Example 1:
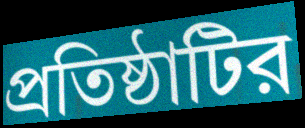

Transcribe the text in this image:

প্রতিষ্ঠাটির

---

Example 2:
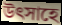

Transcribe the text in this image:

উৎসাহে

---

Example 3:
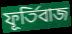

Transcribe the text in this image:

ফূর্তিবাজ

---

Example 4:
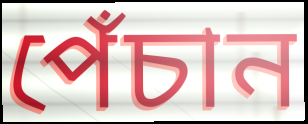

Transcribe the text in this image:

পেঁচান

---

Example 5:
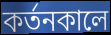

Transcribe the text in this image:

কর্তনকালে